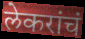
लेकरांचं